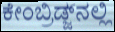
ಕೇಂಬ್ರಿಡ್ಜ್‌ನಲ್ಲಿ